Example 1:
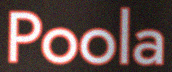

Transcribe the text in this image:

Poola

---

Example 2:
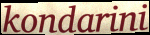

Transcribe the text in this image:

kondarini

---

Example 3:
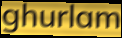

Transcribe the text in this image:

ghurlam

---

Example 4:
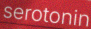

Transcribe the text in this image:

serotonin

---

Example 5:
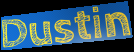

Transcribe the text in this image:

Dustin